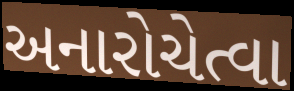
અનારોચેત્વા